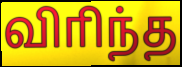
விரிந்த